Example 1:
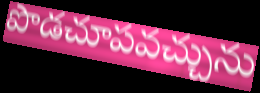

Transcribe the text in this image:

పొడచూపవచ్చును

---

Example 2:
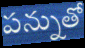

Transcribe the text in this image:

పన్నుతో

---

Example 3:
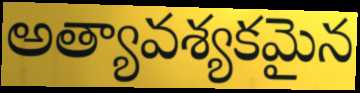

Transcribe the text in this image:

అత్యావశ్యకమైన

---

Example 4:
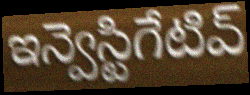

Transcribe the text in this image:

ఇన్వెస్టిగేటివ్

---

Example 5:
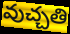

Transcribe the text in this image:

వుచ్చతి